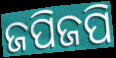
ଜପିଜପି